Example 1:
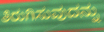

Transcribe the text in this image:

ತಿರುಗಿಸುವುದನ್ನು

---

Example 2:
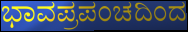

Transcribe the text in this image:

ಭಾವಪ್ರಪಂಚದಿಂದ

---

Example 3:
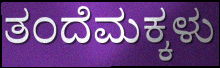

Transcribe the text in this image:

ತಂದೆಮಕ್ಕಳು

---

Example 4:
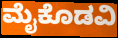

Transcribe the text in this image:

ಮೈಕೊಡವಿ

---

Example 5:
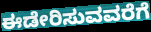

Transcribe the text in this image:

ಈಡೇರಿಸುವವರೆಗೆ